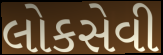
લોકસેવી